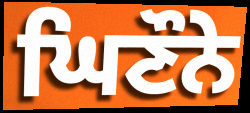
ਘਿਣੌਨੇ